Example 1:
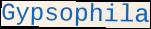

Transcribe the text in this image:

Gypsophila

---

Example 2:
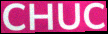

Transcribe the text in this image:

CHUC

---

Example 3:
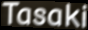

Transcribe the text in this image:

Tasaki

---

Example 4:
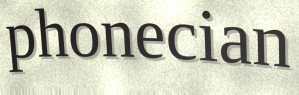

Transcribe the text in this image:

phonecian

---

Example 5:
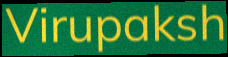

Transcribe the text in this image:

Virupaksh